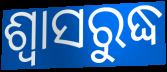
ଶ୍ୱାସରୁଦ୍ଧ